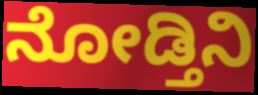
ನೋಡ್ತಿನಿ